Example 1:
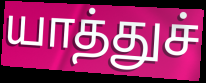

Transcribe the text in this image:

யாத்துச்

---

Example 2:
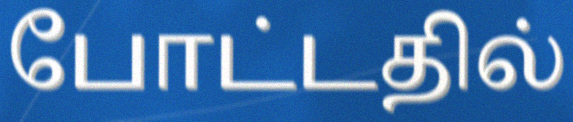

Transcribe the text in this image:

போட்டதில்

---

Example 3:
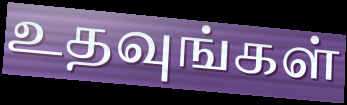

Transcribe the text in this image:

உதவுங்கள்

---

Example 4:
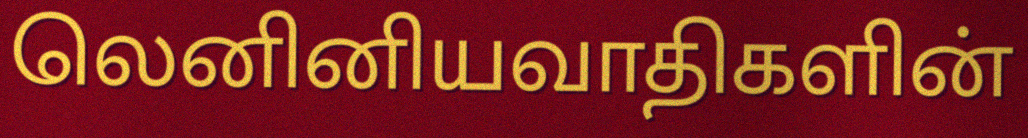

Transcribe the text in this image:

லெனினியவாதிகளின்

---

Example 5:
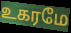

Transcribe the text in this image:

உகரமே